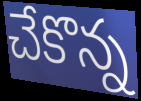
చేకొన్న